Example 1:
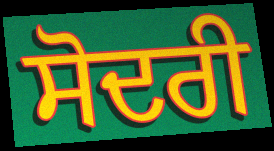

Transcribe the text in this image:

ਸੋਦਰੀ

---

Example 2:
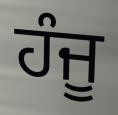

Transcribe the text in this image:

ਹੰਜੂ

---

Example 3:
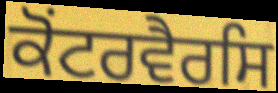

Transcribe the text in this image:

ਕੋਂਟਰਵੈਰਸਿ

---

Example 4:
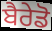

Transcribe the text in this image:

ਬੈਰੇਡੋ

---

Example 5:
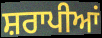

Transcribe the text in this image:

ਸ਼ਰਾਪੀਆਂ